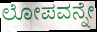
ಲೋಪವನ್ನೇ